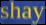
shay